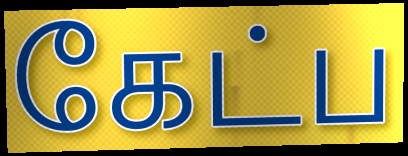
கேட்ப